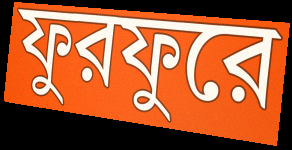
ফুরফুরে